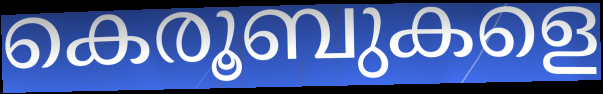
കെരൂബുകളെ